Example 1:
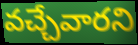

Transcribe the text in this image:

వచ్చేవారని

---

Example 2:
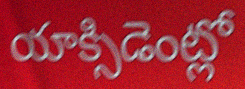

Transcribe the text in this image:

యాక్సిడెంట్లో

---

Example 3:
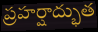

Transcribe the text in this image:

ప్రహర్షాద్భుత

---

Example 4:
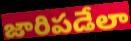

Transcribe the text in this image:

జారిపడేలా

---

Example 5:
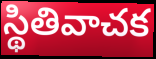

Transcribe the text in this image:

స్థితివాచక